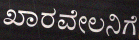
ಖಾರವೇಲನಿಗೆ